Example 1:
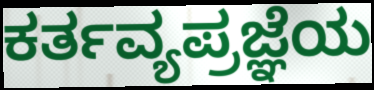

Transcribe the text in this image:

ಕರ್ತವ್ಯಪ್ರಜ್ಞೆಯ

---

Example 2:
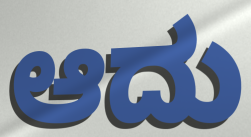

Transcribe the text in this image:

ಆದು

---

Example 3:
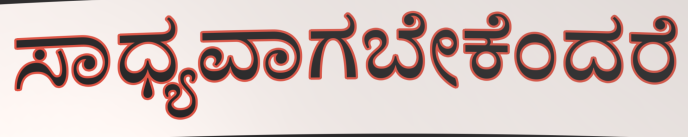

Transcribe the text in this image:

ಸಾಧ್ಯವಾಗಬೇಕೆಂದರೆ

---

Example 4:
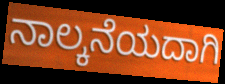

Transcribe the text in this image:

ನಾಲ್ಕನೆಯದಾಗಿ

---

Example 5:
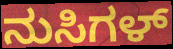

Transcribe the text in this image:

ನುಸಿಗಳ್